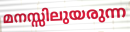
മനസ്സിലുയരുന്ന